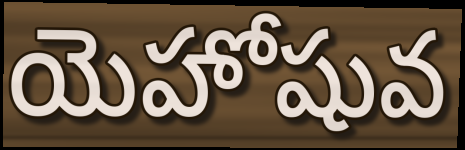
యెహోషువ